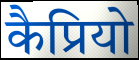
कैप्रियो